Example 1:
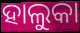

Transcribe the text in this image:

ହାଲୁକା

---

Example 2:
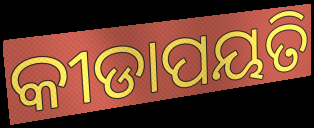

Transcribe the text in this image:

କୀଡାପୟତି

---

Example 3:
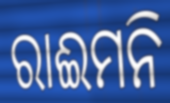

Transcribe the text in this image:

ରାଈମନି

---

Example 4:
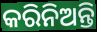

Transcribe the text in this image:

କରିନିଅନ୍ତି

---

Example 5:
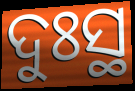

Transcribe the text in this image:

ଦୁଃସ୍ଥ